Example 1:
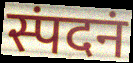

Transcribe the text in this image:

स्पंदनं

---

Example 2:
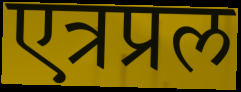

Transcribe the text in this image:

एत्रप्रल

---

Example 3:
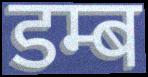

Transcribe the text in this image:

डम्ब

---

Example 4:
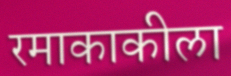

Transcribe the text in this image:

रमाकाकीला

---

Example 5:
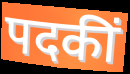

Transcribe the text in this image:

पदकीं